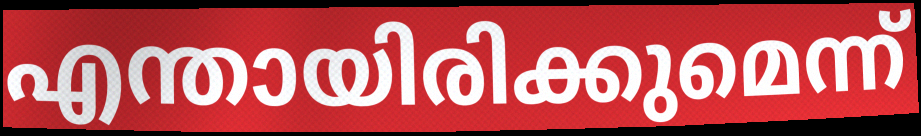
എന്തായിരിക്കുമെന്ന്